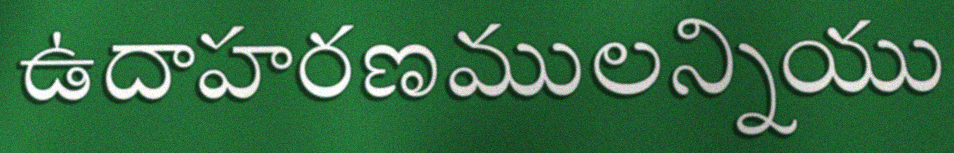
ఉదాహరణములన్నియు